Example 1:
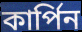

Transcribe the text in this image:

কার্পিন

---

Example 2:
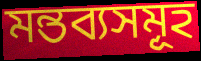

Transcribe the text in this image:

মন্তব্যসমূহ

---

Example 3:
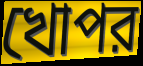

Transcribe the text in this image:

খোপর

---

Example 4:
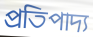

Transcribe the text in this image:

প্রতিপাদ্য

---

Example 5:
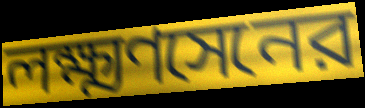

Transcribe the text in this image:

লক্ষ্মণসেনের